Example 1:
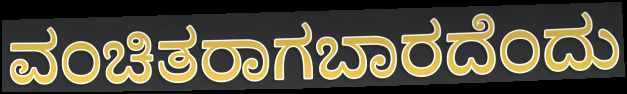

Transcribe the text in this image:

ವಂಚಿತರಾಗಬಾರದೆಂದು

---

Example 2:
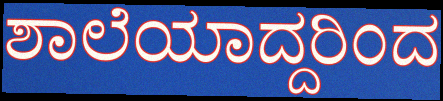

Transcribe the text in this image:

ಶಾಲೆಯಾದ್ದರಿಂದ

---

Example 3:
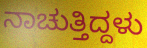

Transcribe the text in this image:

ನಾಚುತ್ತಿದ್ದಳು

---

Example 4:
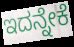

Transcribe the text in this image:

ಇದನ್ನೇಕೆ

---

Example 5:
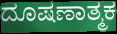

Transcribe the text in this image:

ದೂಷಣಾತ್ಮಕ